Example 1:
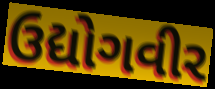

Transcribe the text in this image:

ઉદ્યોગવીર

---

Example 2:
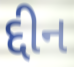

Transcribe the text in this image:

દ્દીન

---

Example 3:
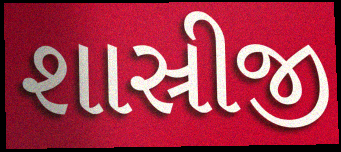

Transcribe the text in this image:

શાસ્રીજી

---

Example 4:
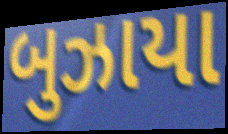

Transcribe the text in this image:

બુઝાયા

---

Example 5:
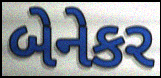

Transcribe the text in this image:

બેનેકર